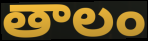
తాలం